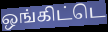
ஒங்கிட்டெ